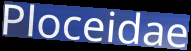
Ploceidae